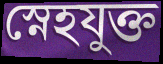
স্নেহযুক্ত